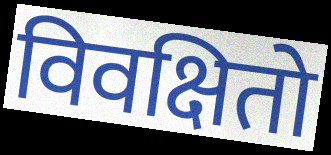
विवक्षितो